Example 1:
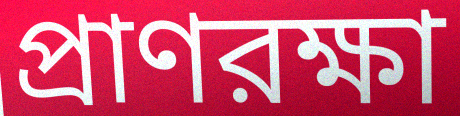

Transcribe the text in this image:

প্রাণরক্ষা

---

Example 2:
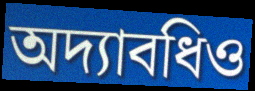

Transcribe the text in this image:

অদ্যাবধিও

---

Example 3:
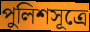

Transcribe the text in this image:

পুলিশসূত্রে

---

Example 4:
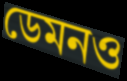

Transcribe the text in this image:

ডেমনও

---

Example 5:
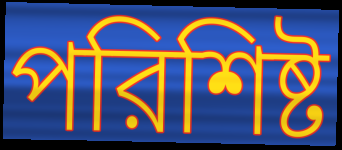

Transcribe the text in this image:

পরিশিষ্ট